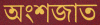
অংশজাত